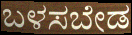
ಬಳಸಬೇಡ